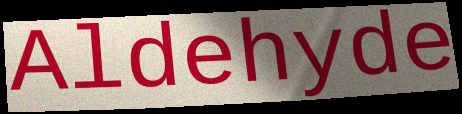
Aldehyde